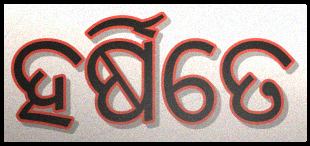
ହର୍ଷିତେ